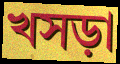
খসড়া